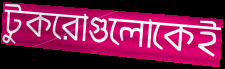
টুকরোগুলোকেই